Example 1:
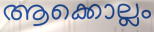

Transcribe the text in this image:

ആക്കൊല്ലം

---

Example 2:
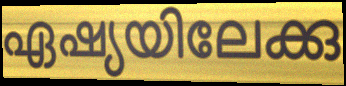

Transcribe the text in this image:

ഏഷ്യയിലേക്കു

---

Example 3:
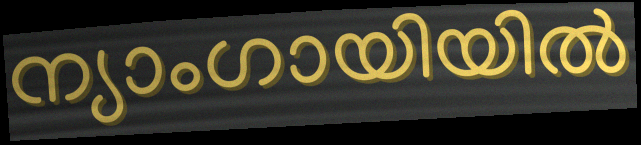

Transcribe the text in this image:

ന്യാംഗായിയിൽ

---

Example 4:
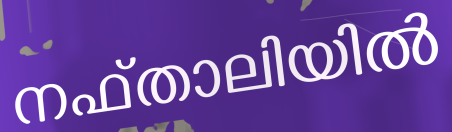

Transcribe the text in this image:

നഫ്താലിയിൽ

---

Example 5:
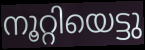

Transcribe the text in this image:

നൂറ്റിയെട്ടു